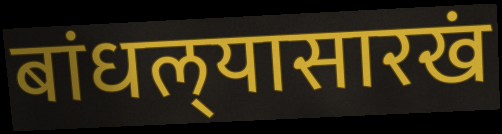
बांधल्यासारखं